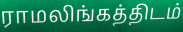
ராமலிங்கத்திடம்